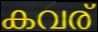
കവര്